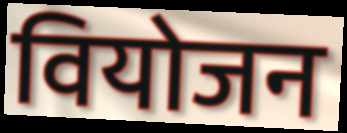
वियोजन